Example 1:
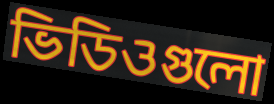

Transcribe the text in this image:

ভিডিওগুলো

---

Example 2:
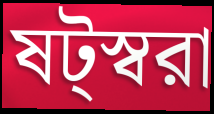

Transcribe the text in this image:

ষট্স্বরা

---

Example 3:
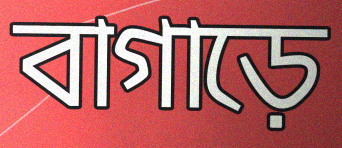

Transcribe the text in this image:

বাগাড়ে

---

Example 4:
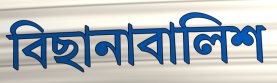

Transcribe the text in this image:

বিছানাবালিশ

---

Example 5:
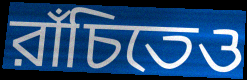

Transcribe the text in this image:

রাঁচিতেও